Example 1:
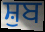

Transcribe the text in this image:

ਸ਼ੁਬ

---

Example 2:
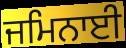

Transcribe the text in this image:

ਜਮਿਨਾਈ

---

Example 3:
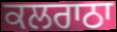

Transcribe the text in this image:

ਕਲਰਾਠਾ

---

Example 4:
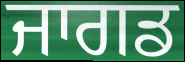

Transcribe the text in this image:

ਜਾਗਡ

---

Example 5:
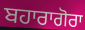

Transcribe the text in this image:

ਬਹਾਰਾਗੋਰਾ